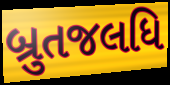
બ્રુતજલધિ